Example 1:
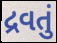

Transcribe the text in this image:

દ્રવતું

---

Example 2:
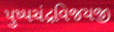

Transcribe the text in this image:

પુષ્પચંદ્રવિજયજી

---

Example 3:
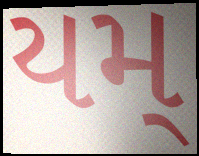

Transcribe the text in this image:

યમ્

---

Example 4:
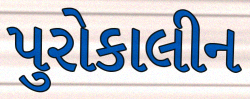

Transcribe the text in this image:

પુરોકાલીન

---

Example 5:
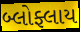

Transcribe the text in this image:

બ્લોફ્લાય